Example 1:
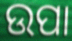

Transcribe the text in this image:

ଉପା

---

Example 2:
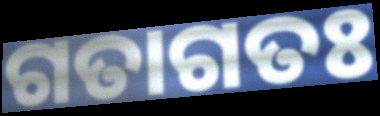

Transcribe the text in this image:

ଗତାଗତଃ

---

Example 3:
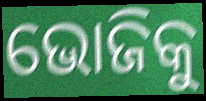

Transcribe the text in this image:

ଭୋଜିକୁ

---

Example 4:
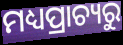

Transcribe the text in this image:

ମଧ୍ୟପ୍ରାଚ୍ୟରୁ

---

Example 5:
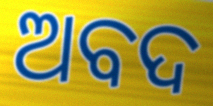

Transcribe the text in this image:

ଅବଦ